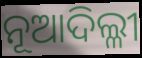
ନୂଆଦିଲ୍ଳୀ